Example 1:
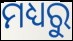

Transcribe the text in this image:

ମଧ୍ୟରୁ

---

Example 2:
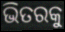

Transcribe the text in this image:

ଭିତରକୁ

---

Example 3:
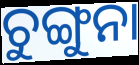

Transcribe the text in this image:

ଚୁଙ୍ଗୁନା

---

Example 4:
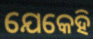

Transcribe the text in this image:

ଯେକେହି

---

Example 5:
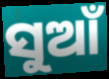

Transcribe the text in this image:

ସୁଆଁ